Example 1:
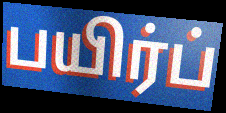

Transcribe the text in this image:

பயிர்ப்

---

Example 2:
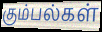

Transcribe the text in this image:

கும்பல்கள்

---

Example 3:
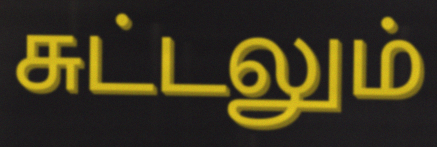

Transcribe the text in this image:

சுட்டலும்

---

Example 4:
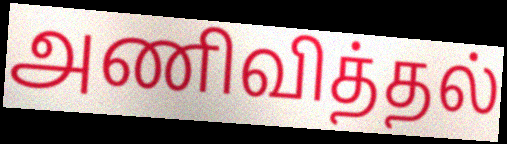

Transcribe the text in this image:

அணிவித்தல்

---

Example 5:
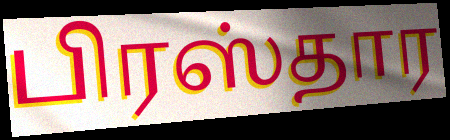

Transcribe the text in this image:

பிரஸ்தார